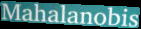
Mahalanobis